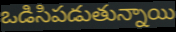
ఒడిసిపడుతున్నాయి